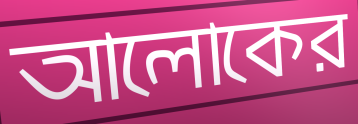
আলোকের